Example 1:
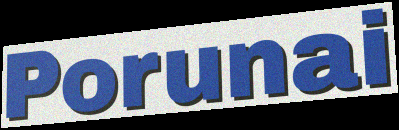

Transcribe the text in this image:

Porunai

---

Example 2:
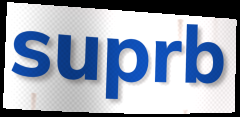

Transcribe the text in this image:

suprb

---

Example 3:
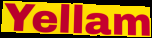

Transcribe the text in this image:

Yellam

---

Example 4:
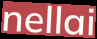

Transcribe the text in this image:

nellai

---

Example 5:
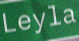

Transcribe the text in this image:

Leyla